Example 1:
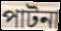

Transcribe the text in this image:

পাটনা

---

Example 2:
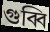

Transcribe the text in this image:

গুব্বি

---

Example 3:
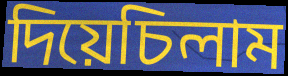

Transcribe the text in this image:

দিয়েচিলাম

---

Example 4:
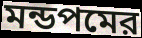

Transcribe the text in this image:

মন্ডপমের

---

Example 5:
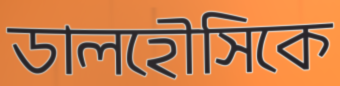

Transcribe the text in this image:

ডালহৌসিকে